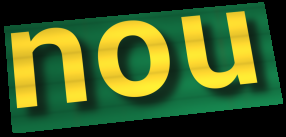
nou